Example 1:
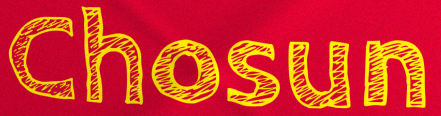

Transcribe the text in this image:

Chosun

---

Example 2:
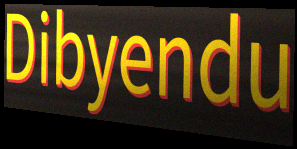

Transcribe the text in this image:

Dibyendu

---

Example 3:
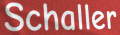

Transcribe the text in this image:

Schaller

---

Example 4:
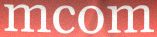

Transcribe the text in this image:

mcom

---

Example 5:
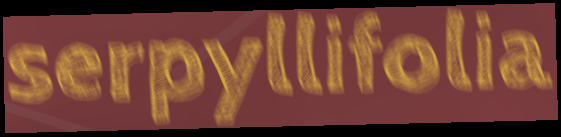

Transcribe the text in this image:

serpyllifolia